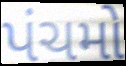
પંચમો